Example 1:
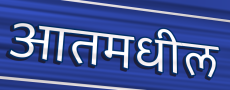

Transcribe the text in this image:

आतमधील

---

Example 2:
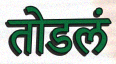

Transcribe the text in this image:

तोडलं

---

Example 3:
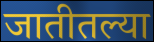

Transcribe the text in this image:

जातीतल्या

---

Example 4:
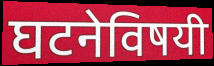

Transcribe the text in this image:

घटनेविषयी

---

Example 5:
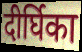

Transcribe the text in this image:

दीर्घिका